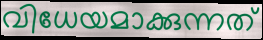
വിധേയമാക്കുന്നത്